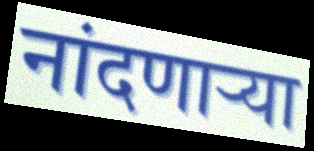
नांदणाऱ्या